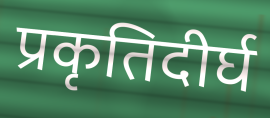
प्रकृतिदीर्घ